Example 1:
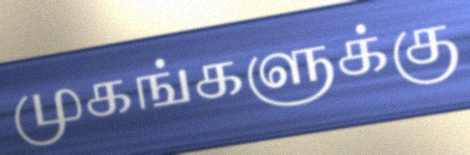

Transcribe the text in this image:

முகங்களுக்கு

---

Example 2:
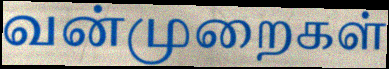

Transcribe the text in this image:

வன்முறைகள்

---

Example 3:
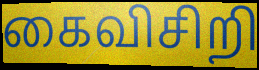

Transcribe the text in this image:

கைவிசிறி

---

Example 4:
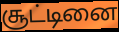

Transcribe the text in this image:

சூட்டினை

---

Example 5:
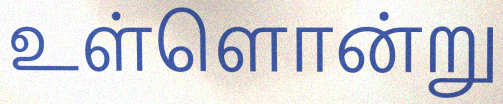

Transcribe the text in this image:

உள்ளொன்று